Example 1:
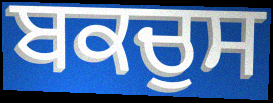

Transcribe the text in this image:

ਬਕਚੁਸ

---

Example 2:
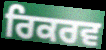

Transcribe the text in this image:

ਰਿਕਰਵ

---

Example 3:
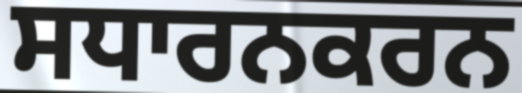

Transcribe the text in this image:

ਸਧਾਰਨਕਰਨ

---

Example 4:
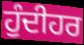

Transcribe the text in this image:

ਹੁੰਦੀਹਰ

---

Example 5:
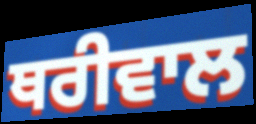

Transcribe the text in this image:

ਥਰੀਵਾਲ